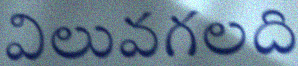
విలువగలది